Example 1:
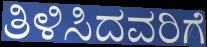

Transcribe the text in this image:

ತಿಳಿಸಿದವರಿಗೆ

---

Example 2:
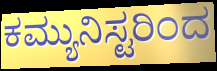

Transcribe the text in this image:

ಕಮ್ಯುನಿಸ್ಟರಿಂದ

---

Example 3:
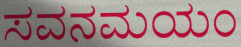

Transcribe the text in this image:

ಸವನಮಯಂ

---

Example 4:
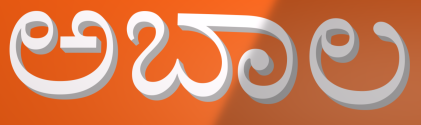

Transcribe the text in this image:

ಅಬಾಲ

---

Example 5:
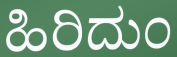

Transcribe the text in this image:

ಹಿರಿದುಂ